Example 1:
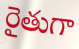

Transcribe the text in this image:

రైతుగా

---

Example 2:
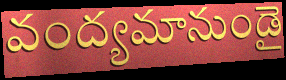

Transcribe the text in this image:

వంద్యమానుండై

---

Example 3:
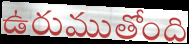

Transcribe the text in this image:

ఉరుముతోంది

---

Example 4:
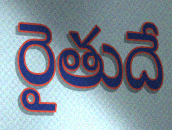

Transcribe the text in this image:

రైతుదే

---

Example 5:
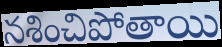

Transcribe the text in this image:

నశించిపోతాయి